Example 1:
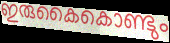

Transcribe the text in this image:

ഇരുകൈകൊണ്ടും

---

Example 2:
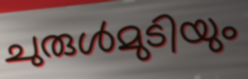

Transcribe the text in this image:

ചുരുൾമുടിയും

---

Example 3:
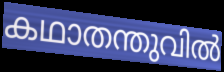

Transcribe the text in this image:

കഥാതന്തുവിൽ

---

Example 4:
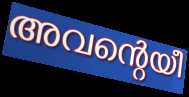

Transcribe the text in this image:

അവന്റെയീ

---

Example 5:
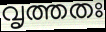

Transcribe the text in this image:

വൃത്തതഃ